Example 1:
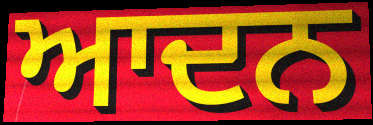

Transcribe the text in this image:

ਆਦਨ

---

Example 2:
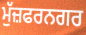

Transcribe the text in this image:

ਮੁੱਜ਼ਫਰਨਗਰ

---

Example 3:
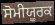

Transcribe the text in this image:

ਸੋਮੀਯੂਰਕ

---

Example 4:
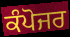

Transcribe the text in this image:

ਕੰਪੋਜਰ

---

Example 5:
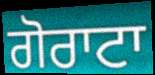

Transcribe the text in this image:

ਗੋਰਾਟਾ